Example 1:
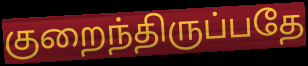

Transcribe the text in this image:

குறைந்திருப்பதே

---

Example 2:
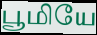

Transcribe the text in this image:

பூமியே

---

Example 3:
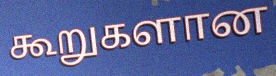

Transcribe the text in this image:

கூறுகளான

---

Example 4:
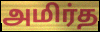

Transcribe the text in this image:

அமிர்த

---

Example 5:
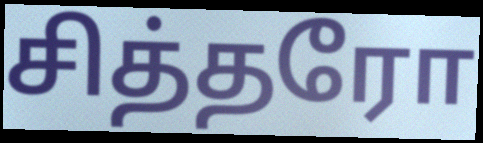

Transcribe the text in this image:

சித்தரோ